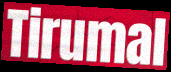
Tirumal